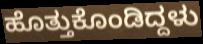
ಹೊತ್ತುಕೊಂಡಿದ್ದಳು